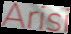
Arisi